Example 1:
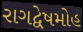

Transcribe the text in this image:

રાગદ્વેષમોહ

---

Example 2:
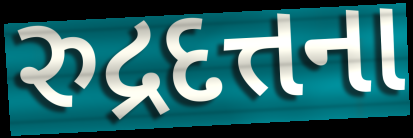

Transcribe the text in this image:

રુદ્રદત્તના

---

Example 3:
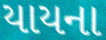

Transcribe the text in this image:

યાયના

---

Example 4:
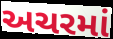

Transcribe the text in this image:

અચરમાં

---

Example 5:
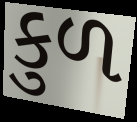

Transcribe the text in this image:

કુળ